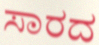
ಸಾರದ